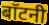
बॉटनी